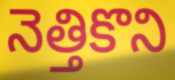
నెత్తికొని